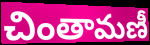
చింతామణీ